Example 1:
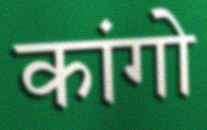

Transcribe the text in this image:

कांगो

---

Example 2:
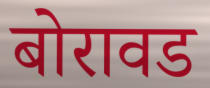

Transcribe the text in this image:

बोरावड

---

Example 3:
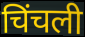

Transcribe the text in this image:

चिंचली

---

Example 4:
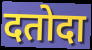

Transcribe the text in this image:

दतोदा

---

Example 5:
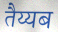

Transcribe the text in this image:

तैय्यब